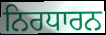
ਨਿਰਧਾਰਨ